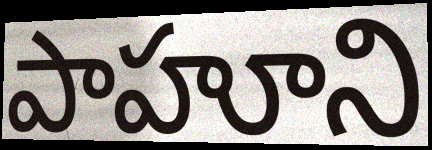
పాహూని